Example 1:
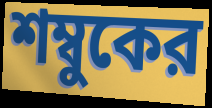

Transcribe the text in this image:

শম্বুকের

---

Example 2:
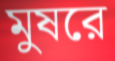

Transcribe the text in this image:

মুষরে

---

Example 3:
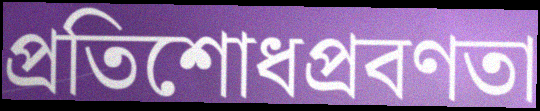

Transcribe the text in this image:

প্রতিশোধপ্রবণতা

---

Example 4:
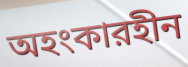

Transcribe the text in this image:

অহংকারহীন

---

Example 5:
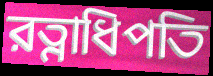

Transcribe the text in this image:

রত্নাধিপতি